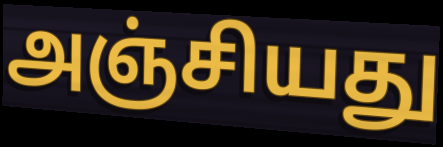
அஞ்சியது